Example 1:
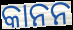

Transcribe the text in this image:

କାନନ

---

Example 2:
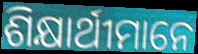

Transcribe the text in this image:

ଶିକ୍ଷାର୍ଥୀମାନେ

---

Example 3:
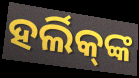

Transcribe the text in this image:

ହର୍ଲିକ୍‌ଙ୍କ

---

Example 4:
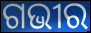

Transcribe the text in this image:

ଗଭୀର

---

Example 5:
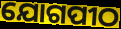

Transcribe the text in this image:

ଯୋଗପୀଠ